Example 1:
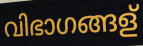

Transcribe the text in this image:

വിഭാഗങ്ങള്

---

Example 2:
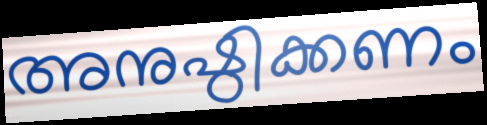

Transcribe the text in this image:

അനുഷ്ഠിക്കണം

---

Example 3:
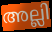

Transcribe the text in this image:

അല്ലി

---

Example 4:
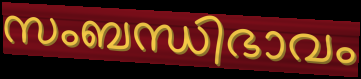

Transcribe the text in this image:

സംബന്ധിഭാവം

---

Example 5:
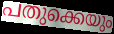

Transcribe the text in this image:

പതുക്കെയും